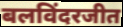
बलविंदरजीत